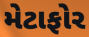
મેટાફોર